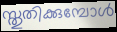
സ്തുതിക്കുമ്പോൾ